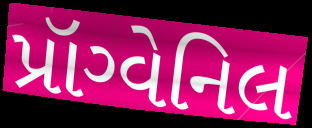
પ્રૉગ્વેનિલ